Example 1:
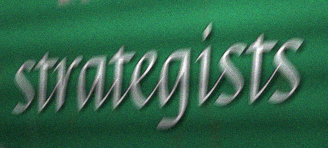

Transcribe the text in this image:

strategists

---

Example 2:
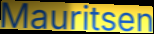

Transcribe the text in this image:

Mauritsen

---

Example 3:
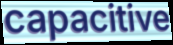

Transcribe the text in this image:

capacitive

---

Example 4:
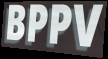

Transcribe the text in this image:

BPPV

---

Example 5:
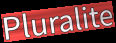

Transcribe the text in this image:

Pluralite